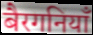
बैरगनियाँ